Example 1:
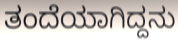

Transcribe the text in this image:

ತಂದೆಯಾಗಿದ್ದನು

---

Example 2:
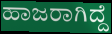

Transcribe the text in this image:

ಹಾಜರಾಗಿದ್ದೆ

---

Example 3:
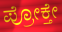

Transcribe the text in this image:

ಪ್ರೋಕ್ತೇ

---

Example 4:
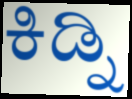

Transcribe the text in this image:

ಕಿಡ್ನಿ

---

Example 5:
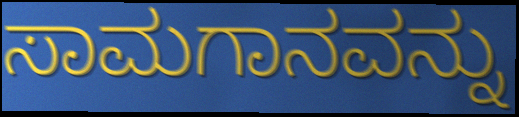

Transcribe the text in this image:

ಸಾಮಗಾನವನ್ನು